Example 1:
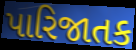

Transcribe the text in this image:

પારિજાતક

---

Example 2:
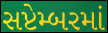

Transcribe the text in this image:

સપ્ટેમ્બરમાં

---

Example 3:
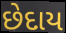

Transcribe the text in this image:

છેદાય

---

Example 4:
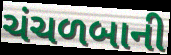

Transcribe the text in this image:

ચંચળબાની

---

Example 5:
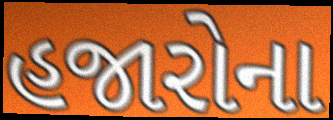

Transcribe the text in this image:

હજારોના